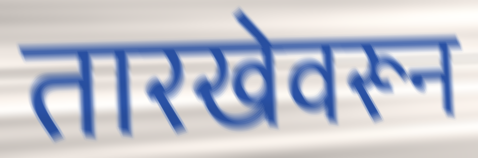
तारखेवरून